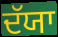
ਦੱਯਾ